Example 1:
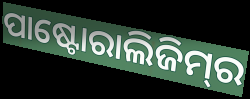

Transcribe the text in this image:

ପାଷ୍ଟୋରାଲିଜିମ୍‌ର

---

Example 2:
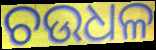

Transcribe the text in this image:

ଚଉଧଳ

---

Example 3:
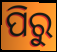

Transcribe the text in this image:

ପିରୁ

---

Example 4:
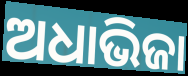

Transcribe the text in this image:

ଅଧାଭିଜା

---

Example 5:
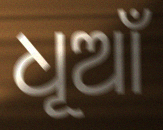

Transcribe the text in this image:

ଧୂଆଁ